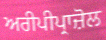
ਅਰੀਪੀਪ੍ਰਾਜ਼ੋਲ